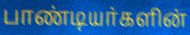
பாண்டியர்களின்